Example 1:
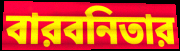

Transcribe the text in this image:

বারবনিতার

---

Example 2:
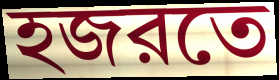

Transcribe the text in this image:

হজরতে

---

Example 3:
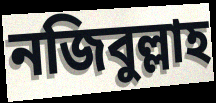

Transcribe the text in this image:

নজিবুল্লাহ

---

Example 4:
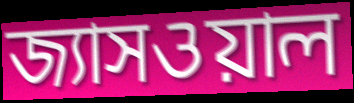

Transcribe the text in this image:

জ্যাসওয়াল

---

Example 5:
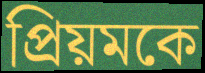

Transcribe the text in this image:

প্রিয়মকে